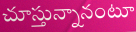
చూస్తున్నానంటూ